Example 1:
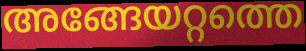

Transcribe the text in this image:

അങ്ങേയറ്റത്തെ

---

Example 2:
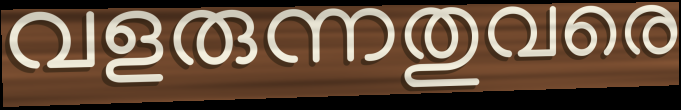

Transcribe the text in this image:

വളരുന്നതുവരെ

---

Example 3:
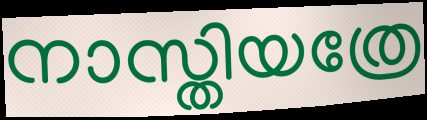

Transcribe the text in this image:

നാസ്തിയത്രേ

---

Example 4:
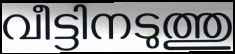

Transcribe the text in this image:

വീട്ടിനടുത്തു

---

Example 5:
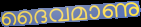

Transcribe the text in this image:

ദൈവമാണു